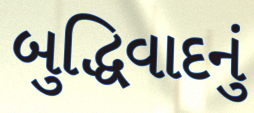
બુદ્ધિવાદનું